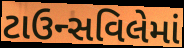
ટાઉન્સવિલેમાં